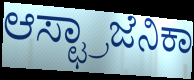
ಆಸ್ಟ್ರಾಜೆನಿಕಾ